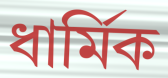
ধাৰ্মিক